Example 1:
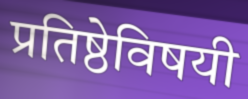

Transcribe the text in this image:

प्रतिष्ठेविषयी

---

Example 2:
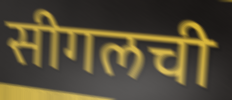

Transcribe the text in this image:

सीगलची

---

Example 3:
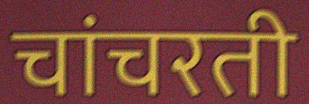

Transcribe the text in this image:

चांचरती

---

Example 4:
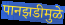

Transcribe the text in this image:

पानझडीमुळे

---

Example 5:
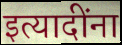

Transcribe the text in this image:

इत्यादींना